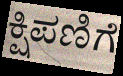
ಕ್ಷಿಪಣಿಗೆ